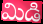
మిడి